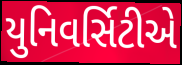
યુનિવર્સિટીએ